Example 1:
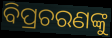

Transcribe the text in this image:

ବିପ୍ରଚରଣଙ୍କୁ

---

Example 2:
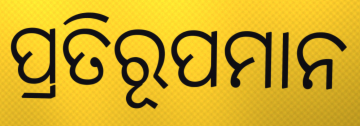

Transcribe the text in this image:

ପ୍ରତିରୂପମାନ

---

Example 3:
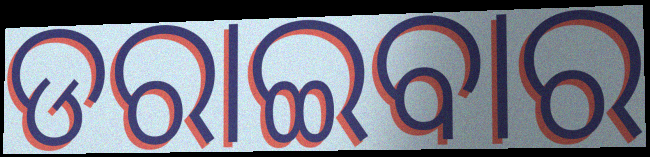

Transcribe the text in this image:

ଡରାଇବାର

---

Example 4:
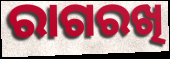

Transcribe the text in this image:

ରାଗରଖି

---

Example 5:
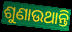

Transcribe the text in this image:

ଶୁଣାଉଥାନ୍ତି